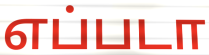
எப்படா